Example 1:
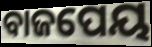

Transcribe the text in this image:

ବାଜପେୟ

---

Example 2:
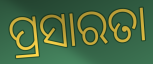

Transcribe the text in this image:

ପ୍ରସାରତା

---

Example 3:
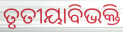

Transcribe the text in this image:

ତୃତୀୟାବିଭକ୍ତି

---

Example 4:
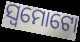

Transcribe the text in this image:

ସ୍ୱମୋଟୋ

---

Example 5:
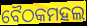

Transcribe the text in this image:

ବୈଠକମହଲ